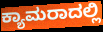
ಕ್ಯಾಮರಾದಲ್ಲಿ